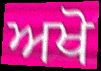
ਅਖੋ